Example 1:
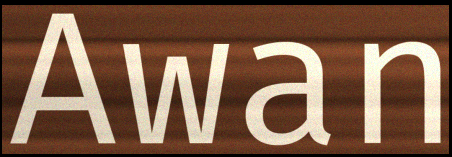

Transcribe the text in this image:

Awan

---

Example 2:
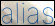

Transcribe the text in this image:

alias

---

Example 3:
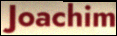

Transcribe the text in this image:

Joachim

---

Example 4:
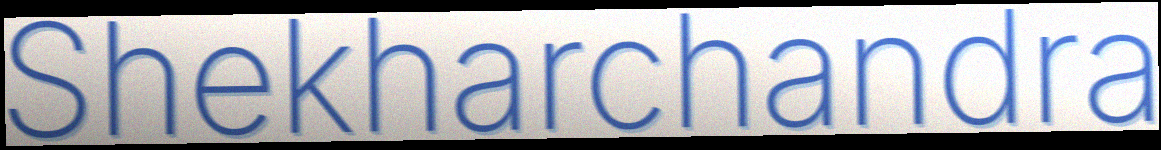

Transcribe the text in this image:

Shekharchandra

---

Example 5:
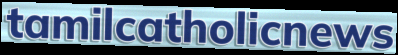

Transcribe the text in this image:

tamilcatholicnews